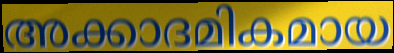
അക്കാദമികമായ